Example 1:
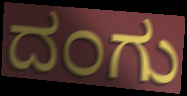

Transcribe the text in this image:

ದಂಗು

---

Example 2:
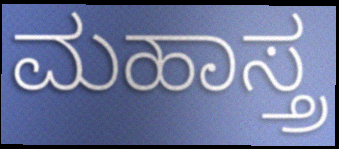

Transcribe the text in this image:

ಮಹಾಸ್ತ್ರ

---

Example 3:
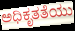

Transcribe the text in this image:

ಅಧಿಕೃತತೆಯು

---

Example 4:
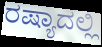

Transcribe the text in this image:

ರಷ್ಯಾದಲ್ಲಿ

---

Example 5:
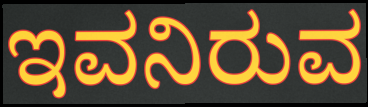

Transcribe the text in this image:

ಇವನಿರುವ